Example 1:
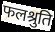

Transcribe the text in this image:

फलश्रुति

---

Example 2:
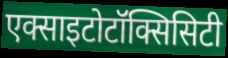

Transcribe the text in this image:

एक्साइटोटॉक्सिसिटी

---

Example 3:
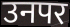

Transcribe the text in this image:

उनपर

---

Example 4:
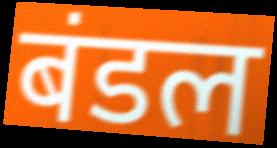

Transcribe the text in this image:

बंडल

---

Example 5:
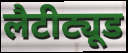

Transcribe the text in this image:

लैटीट्यूड